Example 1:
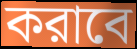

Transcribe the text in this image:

করাবে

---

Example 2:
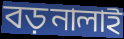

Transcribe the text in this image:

বড়নালাই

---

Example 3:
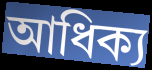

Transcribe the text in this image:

আধিক্য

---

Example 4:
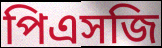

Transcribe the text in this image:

পিএসজি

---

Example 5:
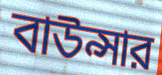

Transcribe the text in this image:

বাউন্সার